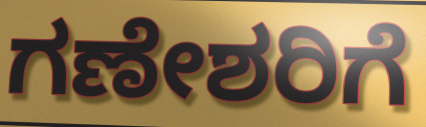
ಗಣೇಶರಿಗೆ